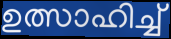
ഉത്സാഹിച്ച്